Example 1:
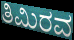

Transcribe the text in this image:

ತಿಮಿರವ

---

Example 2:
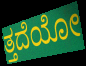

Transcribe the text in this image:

ತ್ತದೆಯೋ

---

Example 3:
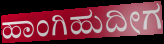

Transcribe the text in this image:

ಹಾಂಗಿಹುದೀಗ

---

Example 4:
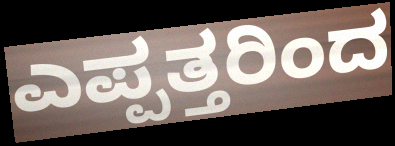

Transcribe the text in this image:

ಎಪ್ಪತ್ತರಿಂದ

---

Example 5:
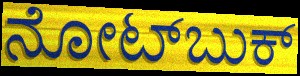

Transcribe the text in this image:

ನೋಟ್‌ಬುಕ್